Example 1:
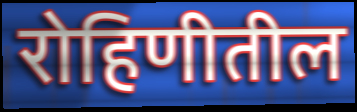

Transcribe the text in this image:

रोहिणीतील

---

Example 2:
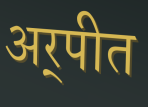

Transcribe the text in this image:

अर्पीत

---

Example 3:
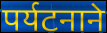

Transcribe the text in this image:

पर्यटनाने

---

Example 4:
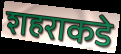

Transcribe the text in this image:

शहराकडे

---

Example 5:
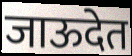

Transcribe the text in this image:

जाऊदेत